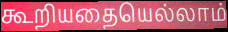
கூறியதையெல்லாம்